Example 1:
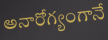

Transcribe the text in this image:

అనారోగ్యంగానే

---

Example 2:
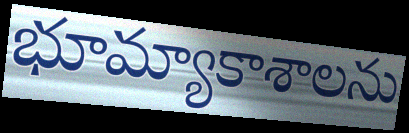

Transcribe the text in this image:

భూమ్యాకాశాలను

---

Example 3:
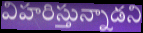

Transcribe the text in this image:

విహరిస్తున్నాడని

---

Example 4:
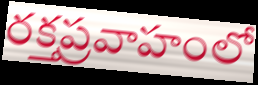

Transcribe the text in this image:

రక్తప్రవాహంలో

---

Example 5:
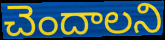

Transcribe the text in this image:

చెందాలని